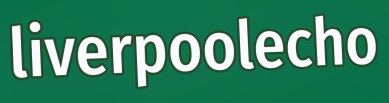
liverpoolecho